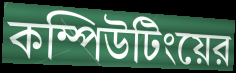
কম্পিউটিংয়ের